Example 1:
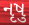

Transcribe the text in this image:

નૃષુ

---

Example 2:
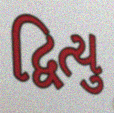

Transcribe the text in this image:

દ્વિત્યુ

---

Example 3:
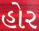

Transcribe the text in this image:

હોર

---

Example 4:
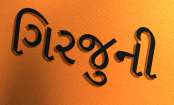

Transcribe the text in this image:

ગિરજુની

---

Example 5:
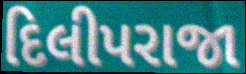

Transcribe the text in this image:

દિલીપરાજા